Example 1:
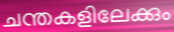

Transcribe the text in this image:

ചന്തകളിലേക്കും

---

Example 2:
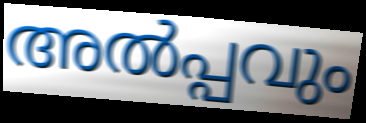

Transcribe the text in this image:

അൽപ്പവും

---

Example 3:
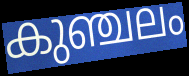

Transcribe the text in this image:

കുഞ്ചലം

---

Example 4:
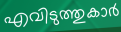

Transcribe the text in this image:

എവിടുത്തുകാർ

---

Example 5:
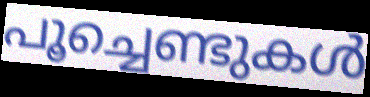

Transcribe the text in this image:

പൂച്ചെണ്ടുകൾ